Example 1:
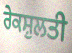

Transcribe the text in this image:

ਰੇਕਸ਼ੁਲਤੀ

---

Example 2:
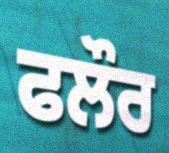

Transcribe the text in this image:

ਫਲੌਰ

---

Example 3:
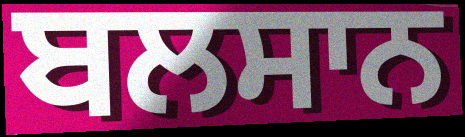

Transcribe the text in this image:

ਬਲਸਾਨ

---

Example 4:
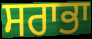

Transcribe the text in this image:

ਸਰਾਭਾ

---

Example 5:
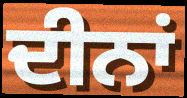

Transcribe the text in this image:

ਦੀਨਾਂ